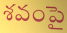
శవంపై